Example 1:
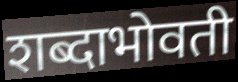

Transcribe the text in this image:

शब्दाभोवती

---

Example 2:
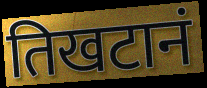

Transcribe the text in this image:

तिखटानं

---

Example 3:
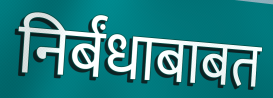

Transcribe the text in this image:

निर्बंधाबाबत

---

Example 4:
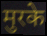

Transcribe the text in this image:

मुरके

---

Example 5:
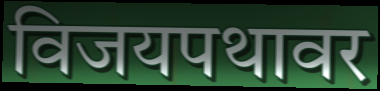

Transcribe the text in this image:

विजयपथावर